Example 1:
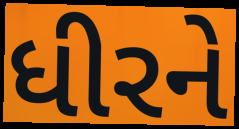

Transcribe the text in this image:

ધીરને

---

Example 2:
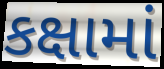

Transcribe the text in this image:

કક્ષામાં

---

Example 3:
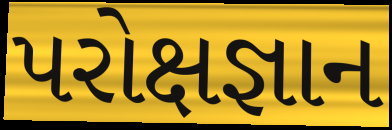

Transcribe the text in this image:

પરોક્ષજ્ઞાન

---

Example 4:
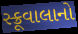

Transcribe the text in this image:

સ્ક્રૂવાલાનો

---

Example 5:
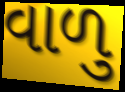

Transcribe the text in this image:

વાળુ